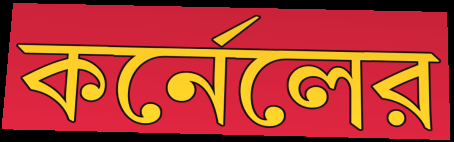
কর্নেলের